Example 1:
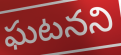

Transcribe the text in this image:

ఘటనని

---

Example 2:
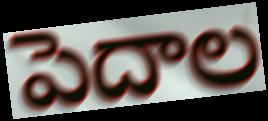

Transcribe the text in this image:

పెదాల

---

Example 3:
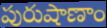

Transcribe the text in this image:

పురుషాణాం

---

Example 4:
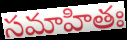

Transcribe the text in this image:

సమాహితః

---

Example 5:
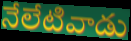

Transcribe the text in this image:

నేలేటివాడు